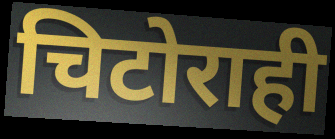
चिटोराही